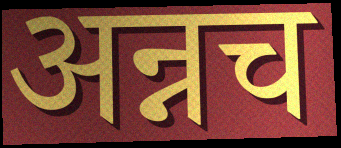
अन्नच